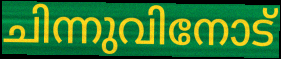
ചിന്നുവിനോട്